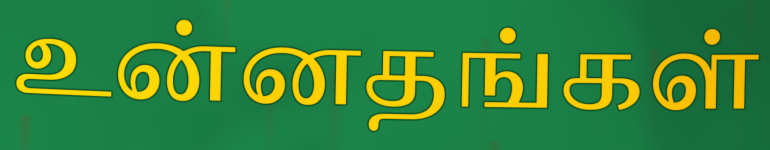
உன்னதங்கள்